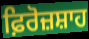
ਫ਼ਿਰੋਜ਼ਸ਼ਾਹ